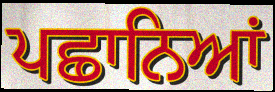
ਪਛਾਨਿਆਂ